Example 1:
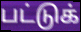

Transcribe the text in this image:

பட்டுக்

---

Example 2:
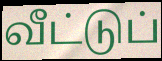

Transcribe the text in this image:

வீட்டுப்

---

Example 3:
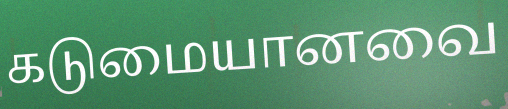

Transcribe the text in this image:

கடுமையானவை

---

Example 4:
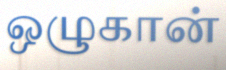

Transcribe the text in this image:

ஒழுகான்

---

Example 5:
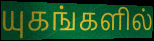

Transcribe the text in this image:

யுகங்களில்